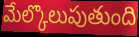
మేల్కొలుపుతుంది